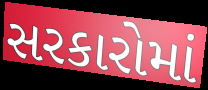
સરકારોમાં